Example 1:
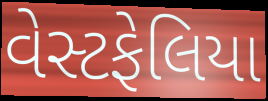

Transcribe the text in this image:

વેસ્ટફેલિયા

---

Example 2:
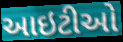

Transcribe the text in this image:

આઇટીઓ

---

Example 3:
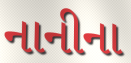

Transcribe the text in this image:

નાનીના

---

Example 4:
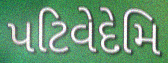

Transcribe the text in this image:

પટિવેદેમિ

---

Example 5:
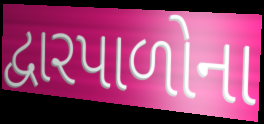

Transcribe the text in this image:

દ્વારપાળોના